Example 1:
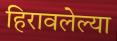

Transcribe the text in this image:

हिरावलेल्या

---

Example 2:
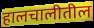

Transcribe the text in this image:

हालचालीतील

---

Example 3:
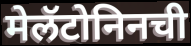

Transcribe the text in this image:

मेलॅटोनिनची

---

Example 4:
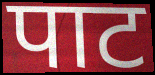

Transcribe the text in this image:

पाट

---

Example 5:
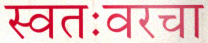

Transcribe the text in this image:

स्वतःवरचा